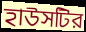
হাউসটির